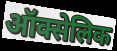
ऑक्सेलिक